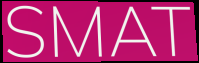
SMAT